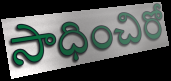
సాధించిరో